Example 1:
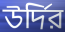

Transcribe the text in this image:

উর্দির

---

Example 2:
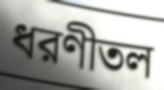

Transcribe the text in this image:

ধরণীতল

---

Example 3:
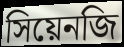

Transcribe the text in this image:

সিয়েনজি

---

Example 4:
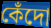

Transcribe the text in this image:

কেঁদো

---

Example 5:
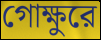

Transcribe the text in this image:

গোক্ষুরে